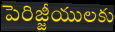
పెరిజ్జీయులకు